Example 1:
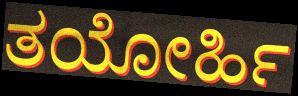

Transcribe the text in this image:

ತಯೋರ್ಹಿ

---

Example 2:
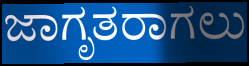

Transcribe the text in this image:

ಜಾಗೃತರಾಗಲು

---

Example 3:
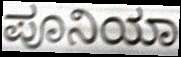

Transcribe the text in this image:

ಪೂನಿಯಾ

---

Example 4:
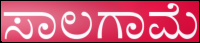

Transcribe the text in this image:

ಸಾಲಗಾಮೆ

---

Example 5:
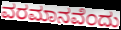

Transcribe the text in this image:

ವರಮಾನವೆಂದು